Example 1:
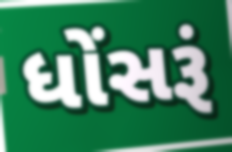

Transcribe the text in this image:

ધોંસરૂં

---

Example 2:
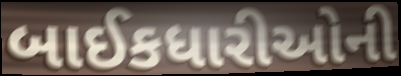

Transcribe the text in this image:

બાઈકધારીઓની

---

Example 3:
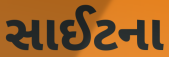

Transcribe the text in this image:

સાઈટના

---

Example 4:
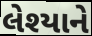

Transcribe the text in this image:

લેશ્યાને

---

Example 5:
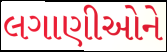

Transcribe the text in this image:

લગાણીઓને